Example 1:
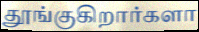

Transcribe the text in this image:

தூங்குகிறார்களா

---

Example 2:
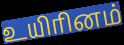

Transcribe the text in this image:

உயிரினம்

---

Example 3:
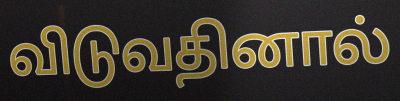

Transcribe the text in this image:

விடுவதினால்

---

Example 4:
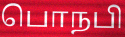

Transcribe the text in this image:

பொநபி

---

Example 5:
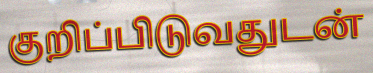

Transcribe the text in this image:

குறிப்பிடுவதுடன்